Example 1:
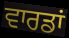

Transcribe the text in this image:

ਵਾਰਡਾਂ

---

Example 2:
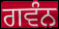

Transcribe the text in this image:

ਗਵੰਨ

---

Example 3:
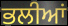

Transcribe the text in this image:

ਭਲੀਆਂ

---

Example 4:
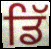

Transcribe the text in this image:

ਡਿੱ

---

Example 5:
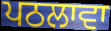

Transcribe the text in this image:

ਪਠਲਾਵਾ